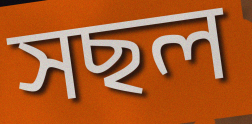
সছল